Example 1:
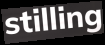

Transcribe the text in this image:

stilling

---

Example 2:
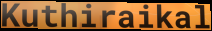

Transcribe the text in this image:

Kuthiraikal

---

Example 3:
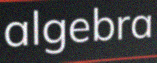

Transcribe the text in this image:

algebra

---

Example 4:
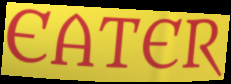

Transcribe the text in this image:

EATER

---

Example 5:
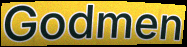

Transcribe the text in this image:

Godmen